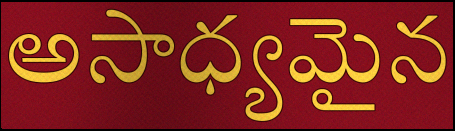
అసాధ్యమైన